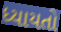
ધ્યાયતો